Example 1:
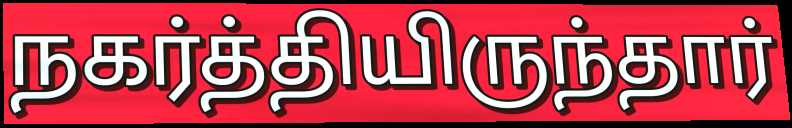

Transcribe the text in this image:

நகர்த்தியிருந்தார்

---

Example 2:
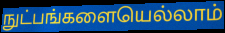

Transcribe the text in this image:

நுட்பங்களையெல்லாம்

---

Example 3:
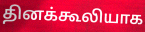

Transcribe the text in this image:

தினக்கூலியாக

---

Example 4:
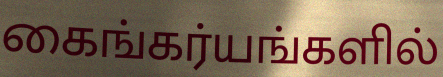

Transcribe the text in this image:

கைங்கர்யங்களில்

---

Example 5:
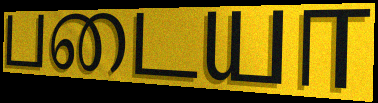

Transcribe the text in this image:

படையா